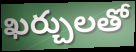
ఖర్చులతో